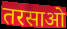
तरसाओ